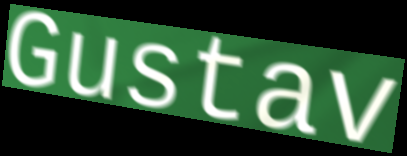
Gustav